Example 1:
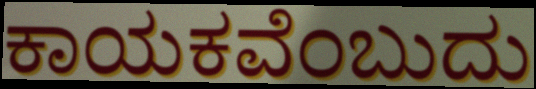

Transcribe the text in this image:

ಕಾಯಕವೆಂಬುದು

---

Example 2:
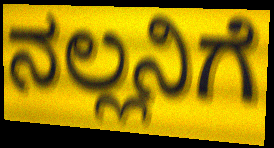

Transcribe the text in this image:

ನಲ್ಲನಿಗೆ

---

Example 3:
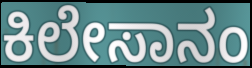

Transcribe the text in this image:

ಕಿಲೇಸಾನಂ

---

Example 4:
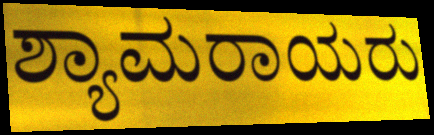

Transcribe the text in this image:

ಶ್ಯಾಮರಾಯರು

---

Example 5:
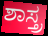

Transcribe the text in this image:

ಶಾಸ್ತ್ರ